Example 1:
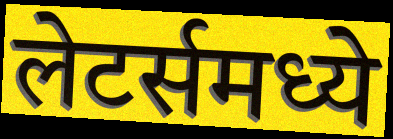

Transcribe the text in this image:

लेटर्समध्ये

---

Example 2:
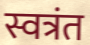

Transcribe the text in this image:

स्वत्रंत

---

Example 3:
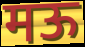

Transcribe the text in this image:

मऊ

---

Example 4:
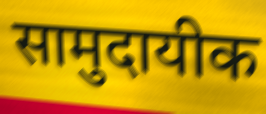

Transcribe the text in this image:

सामुदायीक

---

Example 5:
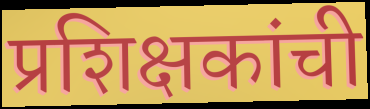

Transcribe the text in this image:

प्रशिक्षकांची